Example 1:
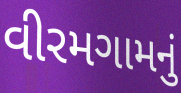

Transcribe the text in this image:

વીરમગામનું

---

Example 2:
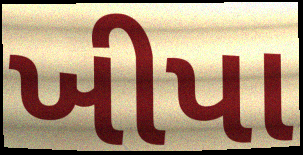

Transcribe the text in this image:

ખીપા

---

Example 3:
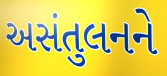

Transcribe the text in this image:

અસંતુલનને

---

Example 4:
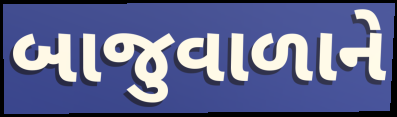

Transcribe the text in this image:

બાજુવાળાને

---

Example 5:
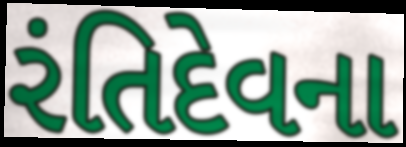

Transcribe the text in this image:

રંતિદેવના